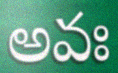
అవః